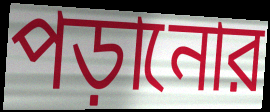
পড়ানোর